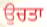
ਉਚਤਾ